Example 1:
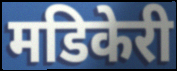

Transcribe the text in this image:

मडिकेरी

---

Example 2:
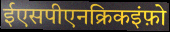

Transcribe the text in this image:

ईएसपीएनक्रिकइंफ़ो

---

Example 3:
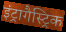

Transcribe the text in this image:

इंट्रागैस्ट्रिक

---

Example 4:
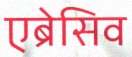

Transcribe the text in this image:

एब्रेसिव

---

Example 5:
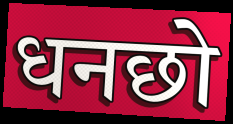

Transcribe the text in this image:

धनछो